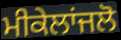
ਮੀਕੇਲਾਂਜਲੋ